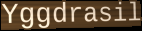
Yggdrasil